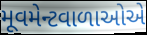
મૂવમેન્ટવાળાઓએ